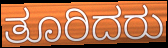
ತೂರಿದರು